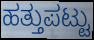
ಹತ್ತುಪಟ್ಟು